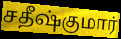
சதீஷ்குமார்